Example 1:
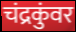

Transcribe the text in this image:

चंद्रकुंवर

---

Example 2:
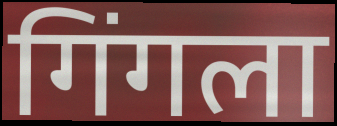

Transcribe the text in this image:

गिंगला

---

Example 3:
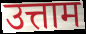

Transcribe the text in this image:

उत्ताम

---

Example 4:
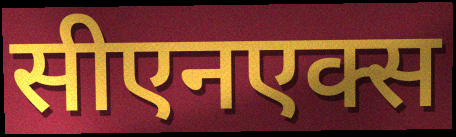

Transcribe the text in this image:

सीएनएक्स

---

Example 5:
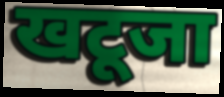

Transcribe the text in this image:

खटूजा